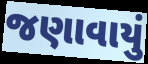
જણાવાયું